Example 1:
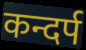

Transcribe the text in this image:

कन्दर्प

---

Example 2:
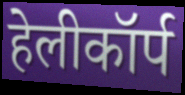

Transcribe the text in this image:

हेलीकॉर्प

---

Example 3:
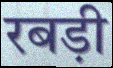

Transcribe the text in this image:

रबड़ी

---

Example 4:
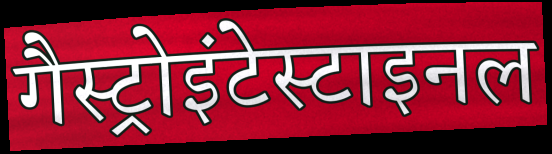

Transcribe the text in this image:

गैस्ट्रोइंटेस्टाइनल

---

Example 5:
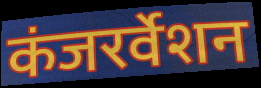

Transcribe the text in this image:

कंजरर्वेशन